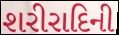
શરીરાદિની